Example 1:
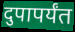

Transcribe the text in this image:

दुपापर्यंत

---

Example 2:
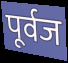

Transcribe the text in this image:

पूर्वज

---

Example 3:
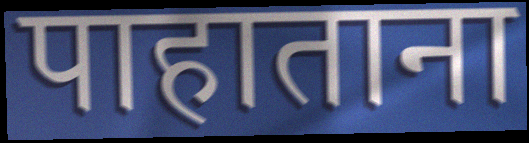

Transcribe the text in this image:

पाहाताना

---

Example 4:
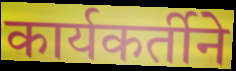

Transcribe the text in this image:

कार्यकर्तीने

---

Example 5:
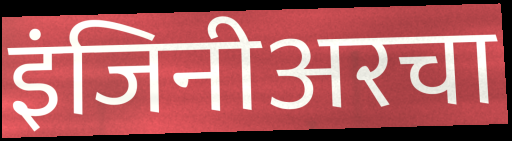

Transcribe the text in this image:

इंजिनीअरचा